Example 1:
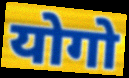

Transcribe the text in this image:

योगो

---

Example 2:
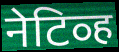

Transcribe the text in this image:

नेटिव्ह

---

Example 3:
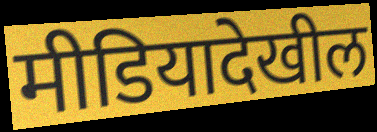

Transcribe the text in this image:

मीडियादेखील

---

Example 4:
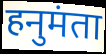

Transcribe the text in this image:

हनुमंता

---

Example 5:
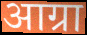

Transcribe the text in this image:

आग्रा